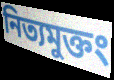
নিত্যমুক্তং